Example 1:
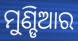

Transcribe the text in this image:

ମୁଣ୍ଡିଆର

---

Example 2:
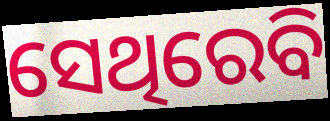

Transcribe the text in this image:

ସେଥିରେବି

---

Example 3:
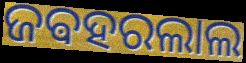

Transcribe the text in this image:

ଜଵହରଲାଲ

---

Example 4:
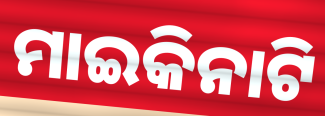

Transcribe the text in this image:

ମାଇକିନାଟି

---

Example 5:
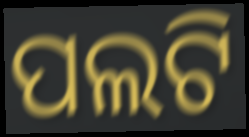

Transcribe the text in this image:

ପଲଟି